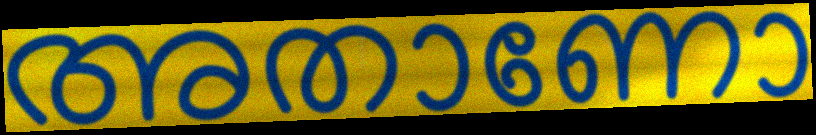
അതാണോ